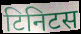
टिनिटस